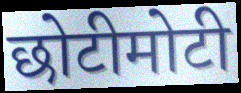
छोटीमोटी